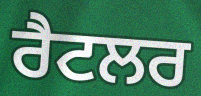
ਰੈਟਲਰ